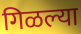
गिळल्या